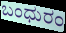
ಬಂಧುರಂ